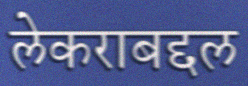
लेकराबद्दल